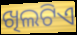
ଖିଲଟିଏ